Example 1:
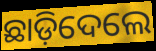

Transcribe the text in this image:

ଛାଡ଼ିଦେଲେ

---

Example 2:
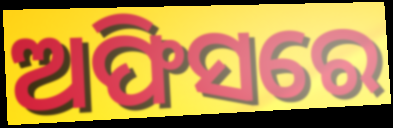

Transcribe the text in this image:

ଅଫିସରେ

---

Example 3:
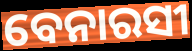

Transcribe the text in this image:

ବେନାରସୀ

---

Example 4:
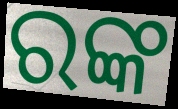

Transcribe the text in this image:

ରଙ୍କ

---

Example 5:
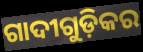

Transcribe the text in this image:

ଗାଦୀଗୁଡ଼ିକର